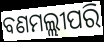
ବଣମଲ୍ଲୀପରି